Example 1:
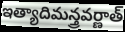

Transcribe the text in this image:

ఇత్యాదిమన్త్రవర్ణాత్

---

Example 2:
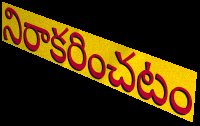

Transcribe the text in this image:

నిరాకరించటం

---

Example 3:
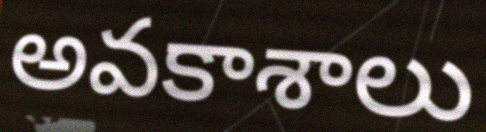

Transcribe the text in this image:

అవకాశాలు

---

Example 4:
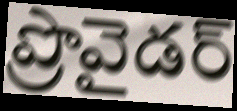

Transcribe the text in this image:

ప్రొవైడర్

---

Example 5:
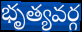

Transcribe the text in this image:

భృత్యవర్గ